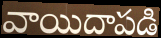
వాయిదాపడి